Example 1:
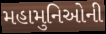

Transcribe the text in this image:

મહામુનિઓની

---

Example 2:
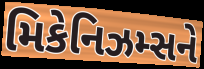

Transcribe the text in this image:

મિકેનિઝમ્સને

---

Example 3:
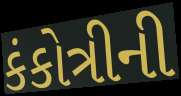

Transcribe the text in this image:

કંકોત્રીની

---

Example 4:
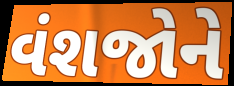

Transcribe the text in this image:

વંશજોને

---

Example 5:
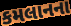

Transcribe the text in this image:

કમલાનના